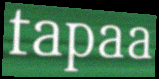
tapaa